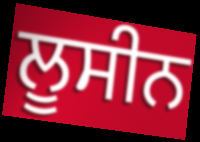
ਲੂਸੀਨ